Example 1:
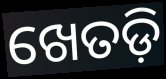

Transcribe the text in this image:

ଖେତଡ଼ି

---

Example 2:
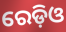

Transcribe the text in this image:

ରେଡ଼ିଓ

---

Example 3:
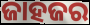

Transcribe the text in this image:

ଜାହଜର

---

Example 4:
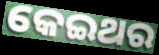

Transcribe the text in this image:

କେଇଥର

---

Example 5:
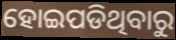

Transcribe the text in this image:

ହୋଇପଡିଥିବାରୁ